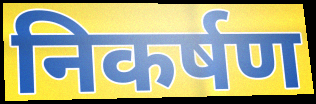
निकर्षण